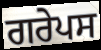
ਗਰੇਪਸ